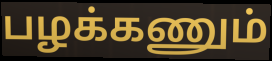
பழக்கணும்